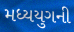
મધ્યયુગની